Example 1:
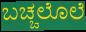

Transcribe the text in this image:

ಬಚ್ಚಲೊಲೆ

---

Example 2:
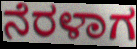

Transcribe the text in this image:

ನೆರಳಾಗ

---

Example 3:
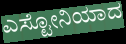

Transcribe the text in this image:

ಎಸ್ಟೋನಿಯಾದ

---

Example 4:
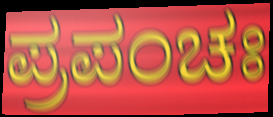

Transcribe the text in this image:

ಪ್ರಪಂಚಃ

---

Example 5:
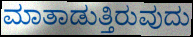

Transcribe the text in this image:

ಮಾತಾಡುತ್ತಿರುವುದು